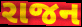
રાજન